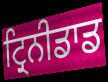
ਟ੍ਰਿਨੀਡਾਡ